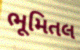
ભૂમિતલ